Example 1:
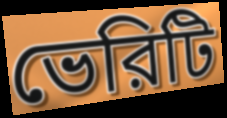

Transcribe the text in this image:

ভেরিটি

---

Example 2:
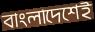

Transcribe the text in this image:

বাংলাদেশেই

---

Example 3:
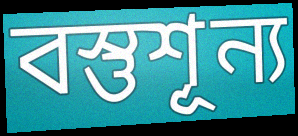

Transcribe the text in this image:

বস্তুশূন্য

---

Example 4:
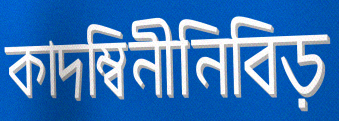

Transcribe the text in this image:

কাদম্বিনীনিবিড়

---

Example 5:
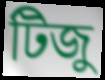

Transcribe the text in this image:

টিজু